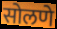
सोलणे